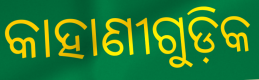
କାହାଣୀଗୁଡ଼ିକ